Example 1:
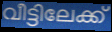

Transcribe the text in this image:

വീട്ടിലേക്ക്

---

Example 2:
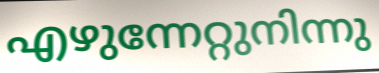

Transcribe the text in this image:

എഴുന്നേറ്റുനിന്നു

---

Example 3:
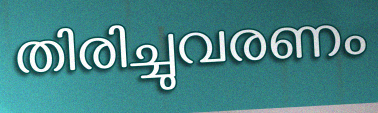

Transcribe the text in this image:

തിരിച്ചുവരണം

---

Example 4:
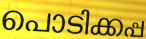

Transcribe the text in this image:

പൊടിക്കപ്പ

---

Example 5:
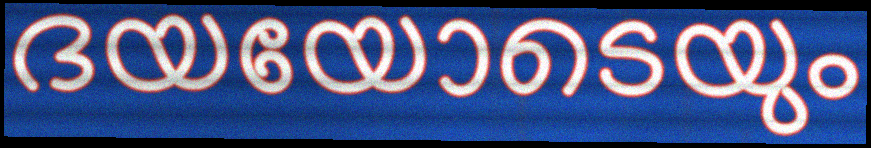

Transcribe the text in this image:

ദയയോടെയും